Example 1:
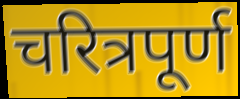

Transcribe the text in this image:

चरित्रपूर्ण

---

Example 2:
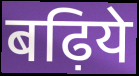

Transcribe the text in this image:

बढ़िये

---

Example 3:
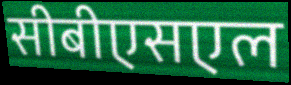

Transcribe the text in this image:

सीबीएसएल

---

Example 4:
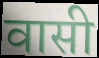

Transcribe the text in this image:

वासी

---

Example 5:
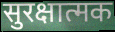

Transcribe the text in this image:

सुरक्षात्मक